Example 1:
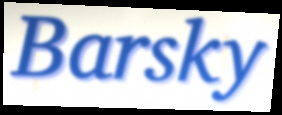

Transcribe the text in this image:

Barsky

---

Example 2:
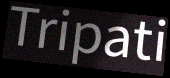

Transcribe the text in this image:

Tripati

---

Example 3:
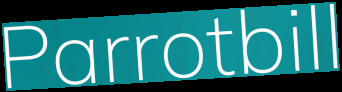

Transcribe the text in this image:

Parrotbill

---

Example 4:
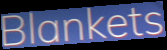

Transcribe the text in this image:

Blankets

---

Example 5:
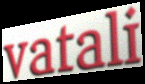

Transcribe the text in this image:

vatali